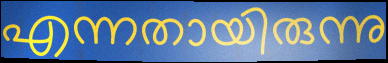
എന്നതായിരുന്നു